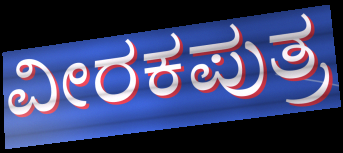
ವೀರಕಪುತ್ರ